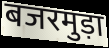
बजरमुड़ा